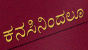
ಕನಸಿನಿಂದಲೂ